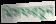
মিসফরচুন